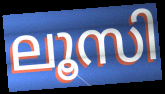
ലൂസി